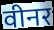
वीनर